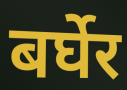
बर्घेर